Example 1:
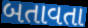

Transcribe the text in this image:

બતાવતા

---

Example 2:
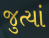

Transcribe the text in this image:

જુત્યાં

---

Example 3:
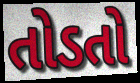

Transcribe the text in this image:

તોડતો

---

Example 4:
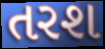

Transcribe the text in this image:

તરશ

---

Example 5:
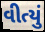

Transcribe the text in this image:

વીત્યું